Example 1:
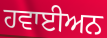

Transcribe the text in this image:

ਹਵਾਈਅਨ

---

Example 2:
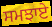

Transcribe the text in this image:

ਸਮਝਾਏ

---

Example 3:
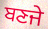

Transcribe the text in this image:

ਬਣਜੇ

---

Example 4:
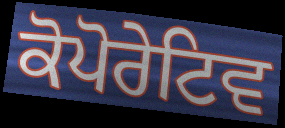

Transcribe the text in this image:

ਕੋਪੋਰੇਟਿਵ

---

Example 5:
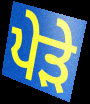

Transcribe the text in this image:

ਪੇੜੇ